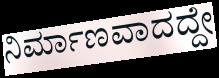
ನಿರ್ಮಾಣವಾದದ್ದೇ